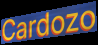
Cardozo